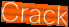
Crack